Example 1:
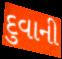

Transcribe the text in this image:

દુવાની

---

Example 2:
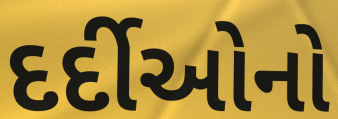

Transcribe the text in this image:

દર્દીઓનો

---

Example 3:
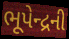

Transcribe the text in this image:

ભૂપેન્દ્રની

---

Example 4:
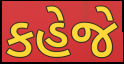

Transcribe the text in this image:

કહેજે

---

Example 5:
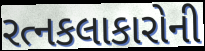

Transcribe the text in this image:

રત્નકલાકારોની